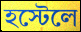
হস্টেলে